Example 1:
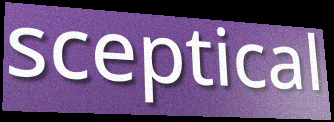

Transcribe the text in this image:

sceptical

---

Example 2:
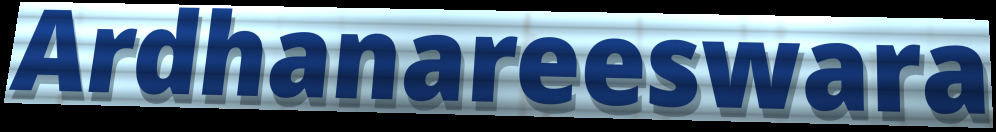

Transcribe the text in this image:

Ardhanareeswara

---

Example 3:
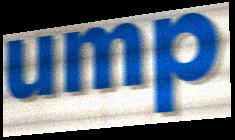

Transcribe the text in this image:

ump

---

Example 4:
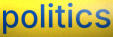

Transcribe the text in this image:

politics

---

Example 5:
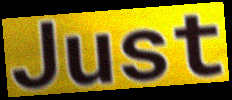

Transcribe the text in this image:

Just